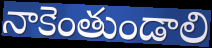
నాకెంతుండాలి